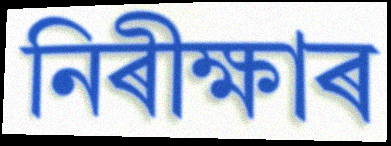
নিৰীক্ষাৰ